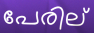
പേരില്